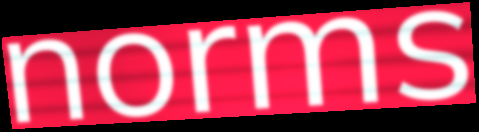
norms